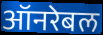
ऑनरेबल